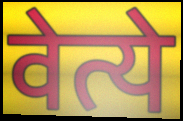
वेत्ये